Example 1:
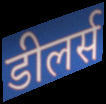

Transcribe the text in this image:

डीलर्स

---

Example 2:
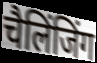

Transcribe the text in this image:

चैलिंजिंग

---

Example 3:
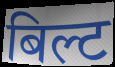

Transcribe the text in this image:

बिल्‍ट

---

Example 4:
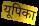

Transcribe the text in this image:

यूपिका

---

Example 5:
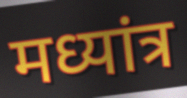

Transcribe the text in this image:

मध्यांत्र